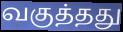
வகுத்தது